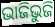
ଭାଜିଭୁଜି